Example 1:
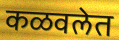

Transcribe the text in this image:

कळवलेत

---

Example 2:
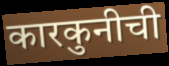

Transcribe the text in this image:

कारकुनीची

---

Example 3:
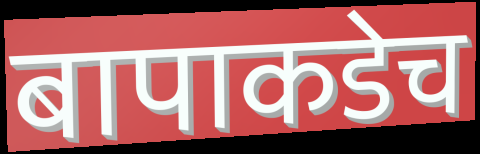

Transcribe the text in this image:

बापाकडेच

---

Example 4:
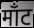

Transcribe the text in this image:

माँट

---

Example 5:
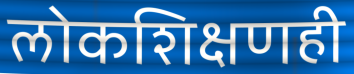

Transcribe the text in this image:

लोकशिक्षणही